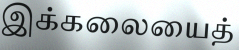
இக்கலையைத்